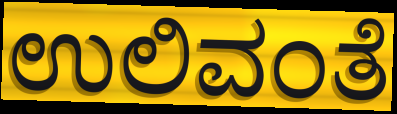
ಉಲಿವಂತೆ